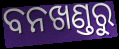
ବନଖଣ୍ଡରୁ